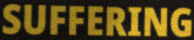
SUFFERING